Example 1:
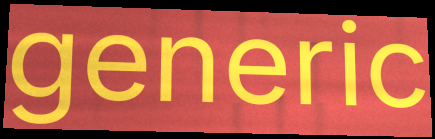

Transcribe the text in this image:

generic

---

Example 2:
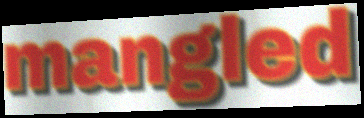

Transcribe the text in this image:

mangled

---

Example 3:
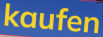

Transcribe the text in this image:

kaufen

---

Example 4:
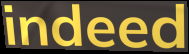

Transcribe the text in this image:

indeed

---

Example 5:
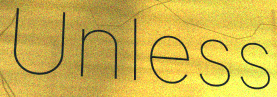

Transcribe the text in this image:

Unless